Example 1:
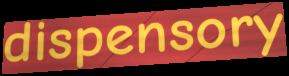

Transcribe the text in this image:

dispensory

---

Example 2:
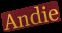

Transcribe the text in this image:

Andie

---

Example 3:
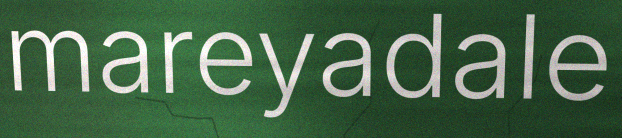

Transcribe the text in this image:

mareyadale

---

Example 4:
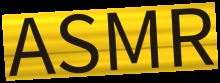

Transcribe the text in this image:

ASMR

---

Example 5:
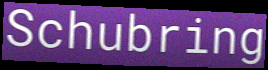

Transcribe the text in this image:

Schubring